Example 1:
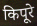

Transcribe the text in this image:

किपूरे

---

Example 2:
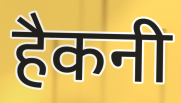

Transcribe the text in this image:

हैकनी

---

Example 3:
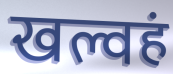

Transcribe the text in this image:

खल्वहं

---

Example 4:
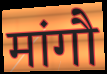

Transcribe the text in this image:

मांगौ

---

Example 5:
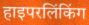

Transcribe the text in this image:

हाइपरलिंकिंग